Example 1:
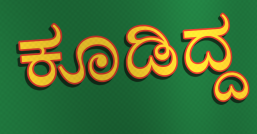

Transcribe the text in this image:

ಕೂಡಿದ್ದ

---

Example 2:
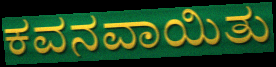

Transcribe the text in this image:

ಕವನವಾಯಿತು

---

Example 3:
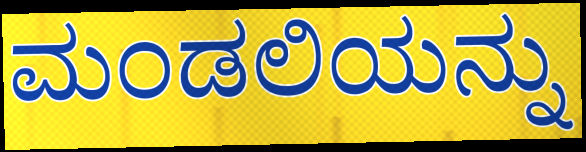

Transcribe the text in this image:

ಮಂಡಲಿಯನ್ನು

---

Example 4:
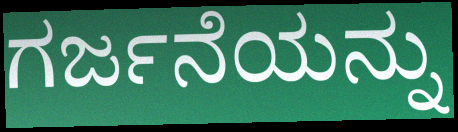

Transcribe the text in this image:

ಗರ್ಜನೆಯನ್ನು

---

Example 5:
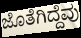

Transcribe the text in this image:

ಜೊತೆಗಿದ್ದೆವು